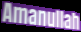
Amanullah